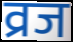
व्रज